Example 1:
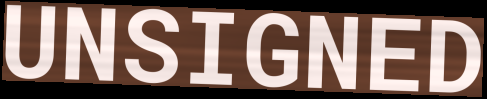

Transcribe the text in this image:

UNSIGNED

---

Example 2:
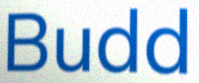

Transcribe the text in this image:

Budd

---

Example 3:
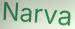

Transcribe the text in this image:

Narva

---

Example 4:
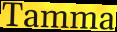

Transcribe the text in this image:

Tamma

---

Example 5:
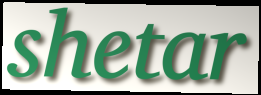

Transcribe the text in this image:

shetar